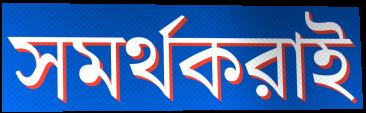
সমর্থকরাই